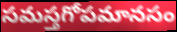
సమస్తగోపమానసం